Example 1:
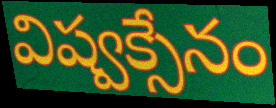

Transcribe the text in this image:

విష్వక్సేనం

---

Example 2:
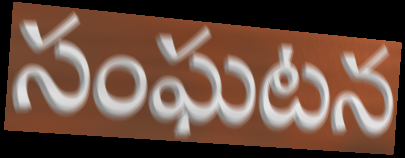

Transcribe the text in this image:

సంఘటన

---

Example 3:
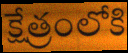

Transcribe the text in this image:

క్షేత్రంలోకి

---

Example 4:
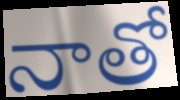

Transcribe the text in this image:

నాతో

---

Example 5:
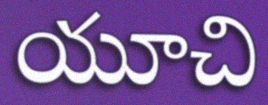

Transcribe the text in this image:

యూచి